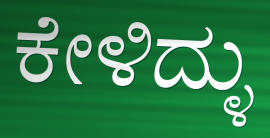
ಕೇಳಿದ್ಳು